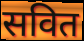
सवित